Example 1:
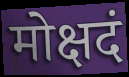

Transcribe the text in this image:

मोक्षदं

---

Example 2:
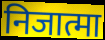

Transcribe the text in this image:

निजात्मा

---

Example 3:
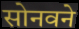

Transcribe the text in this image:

सोनवने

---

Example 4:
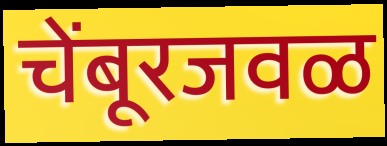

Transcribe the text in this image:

चेंबूरजवळ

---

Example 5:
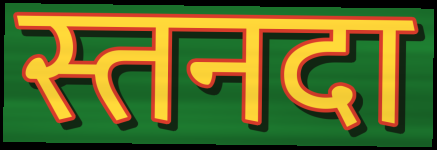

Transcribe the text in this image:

स्तनदा